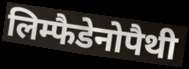
लिम्फैडेनोपैथी